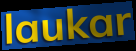
laukar